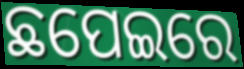
ଛପେଇରେ